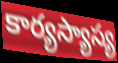
కార్యస్యాస్య